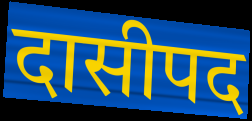
दासीपद